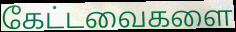
கேட்டவைகளை